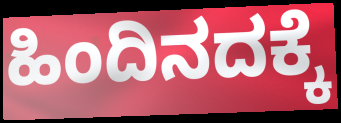
ಹಿಂದಿನದಕ್ಕೆ